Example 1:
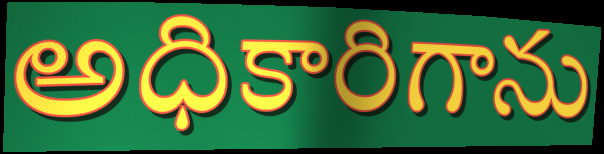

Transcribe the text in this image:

అధికారిగాను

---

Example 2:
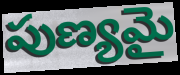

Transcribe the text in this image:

పుణ్యమై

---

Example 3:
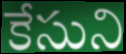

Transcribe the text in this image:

కేసుని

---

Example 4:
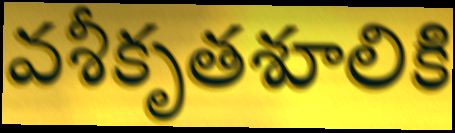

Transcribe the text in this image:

వశీకృతశూలికి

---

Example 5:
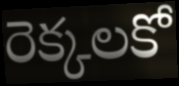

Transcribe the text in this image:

రెక్కలకో